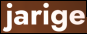
jarige